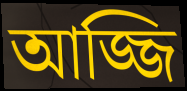
আজ্জি